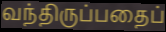
வந்திருப்பதைப்